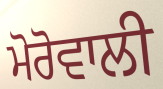
ਮੋਰੋਵਾਲੀ